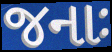
જનાઃ